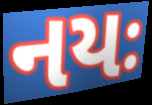
નયઃ